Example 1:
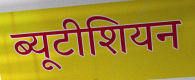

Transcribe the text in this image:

ब्यूटीशियन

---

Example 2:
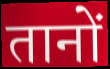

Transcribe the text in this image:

तानों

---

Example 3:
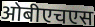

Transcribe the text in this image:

ओबीएचएस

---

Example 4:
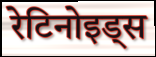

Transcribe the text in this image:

रेटिनोइड्स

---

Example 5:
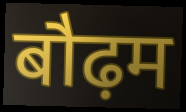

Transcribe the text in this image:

बौढ़म